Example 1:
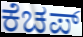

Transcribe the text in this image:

ಕೆಚಪ್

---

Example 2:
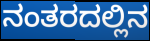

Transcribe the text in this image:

ನಂತರದಲ್ಲಿನ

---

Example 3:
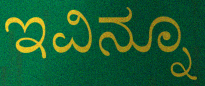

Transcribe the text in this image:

ಇವಿನ್ನೂ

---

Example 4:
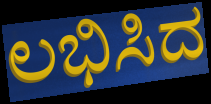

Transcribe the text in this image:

ಲಭಿಸಿದ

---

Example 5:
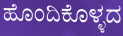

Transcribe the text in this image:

ಹೊಂದಿಕೊಳ್ಳದ